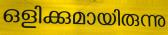
ഒളിക്കുമായിരുന്നു